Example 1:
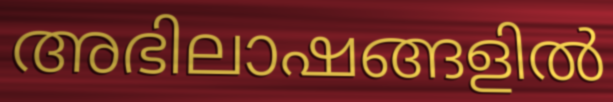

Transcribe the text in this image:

അഭിലാഷങ്ങളിൽ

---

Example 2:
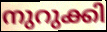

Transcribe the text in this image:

നുറുക്കി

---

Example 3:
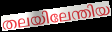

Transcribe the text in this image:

തലയിലേന്തിയ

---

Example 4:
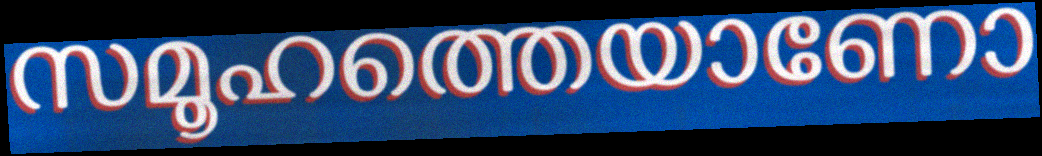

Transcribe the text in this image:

സമൂഹത്തെയാണോ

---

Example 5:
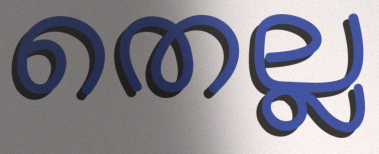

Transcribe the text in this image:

തെല്ല